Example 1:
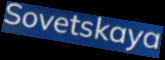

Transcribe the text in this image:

Sovetskaya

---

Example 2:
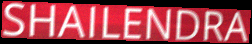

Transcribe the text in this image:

SHAILENDRA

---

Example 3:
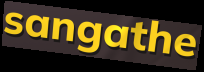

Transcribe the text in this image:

sangathe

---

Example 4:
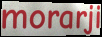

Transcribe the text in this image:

morarji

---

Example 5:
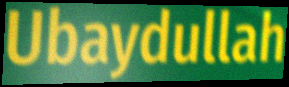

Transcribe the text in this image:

Ubaydullah